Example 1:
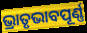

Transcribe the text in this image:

ଭ୍ରାତୃଭାବପୂର୍ଣ୍ଣ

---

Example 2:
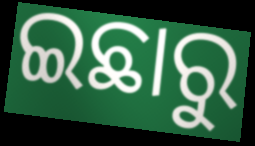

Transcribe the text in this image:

ଇଛାରୁ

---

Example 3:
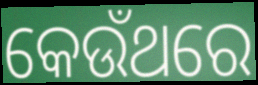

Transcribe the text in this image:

କେଉଁଥରେ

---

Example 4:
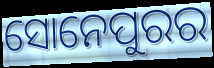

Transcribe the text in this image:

ସୋନେପୁରର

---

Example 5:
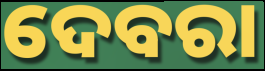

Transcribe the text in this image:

ଦେବରା